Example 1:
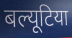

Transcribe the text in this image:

बल्यूटिया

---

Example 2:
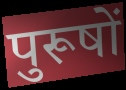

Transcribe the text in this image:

पुरूषों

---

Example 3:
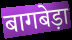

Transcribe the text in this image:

बागबेड़ा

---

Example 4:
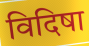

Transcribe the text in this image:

विदिषा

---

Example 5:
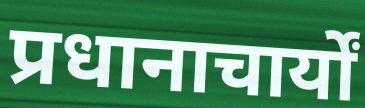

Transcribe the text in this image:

प्रधानाचार्यों